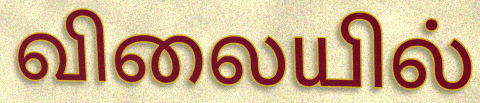
விலையில்